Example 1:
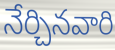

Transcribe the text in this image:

నేర్చినవారి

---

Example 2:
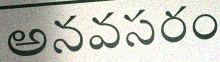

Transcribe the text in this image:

అనవసరం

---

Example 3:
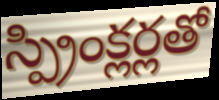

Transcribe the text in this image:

స్ప్రింక్లర్లతో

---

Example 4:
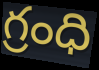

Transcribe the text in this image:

గ్రంధి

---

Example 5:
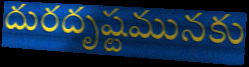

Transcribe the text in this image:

దురదృష్టమునకు